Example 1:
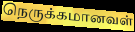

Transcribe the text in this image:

நெருக்கமானவள்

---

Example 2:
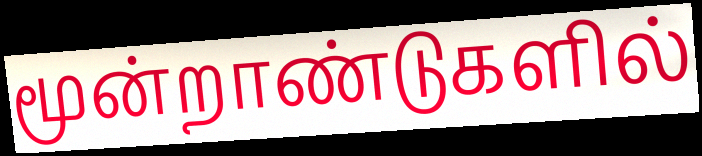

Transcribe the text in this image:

மூன்றாண்டுகளில்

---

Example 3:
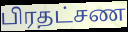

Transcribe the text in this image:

பிரதட்சண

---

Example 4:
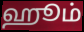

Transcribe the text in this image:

ஹூம்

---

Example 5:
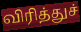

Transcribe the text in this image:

விரித்துச்